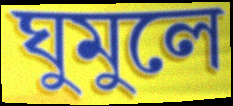
ঘুমুলে